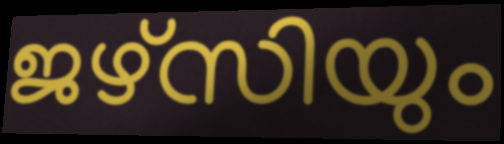
ജഴ്സിയും